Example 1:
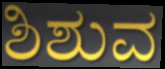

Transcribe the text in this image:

ಶಿಶುವ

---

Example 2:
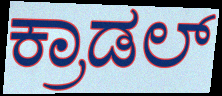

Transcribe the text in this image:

ಕ್ರಾಡಲ್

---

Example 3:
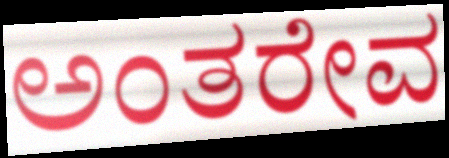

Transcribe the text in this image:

ಅಂತರೇವ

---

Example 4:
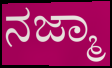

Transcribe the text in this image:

ನಜ್ಮಾ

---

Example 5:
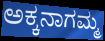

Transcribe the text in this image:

ಅಕ್ಕನಾಗಮ್ಮ